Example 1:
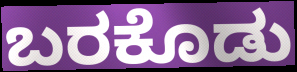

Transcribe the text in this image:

ಬರಕೊಡು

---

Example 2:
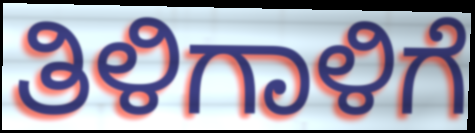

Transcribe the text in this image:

ತಿಳಿಗಾಳಿಗೆ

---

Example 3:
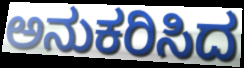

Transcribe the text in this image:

ಅನುಕರಿಸಿದ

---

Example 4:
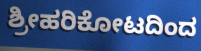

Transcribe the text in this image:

ಶ್ರೀಹರಿಕೋಟದಿಂದ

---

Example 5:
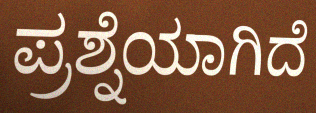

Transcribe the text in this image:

ಪ್ರಶ್ನೆಯಾಗಿದೆ